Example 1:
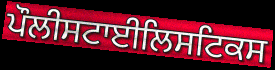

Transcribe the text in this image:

ਪੌਲੀਸਟਾਈਲਿਸਟਿਕਸ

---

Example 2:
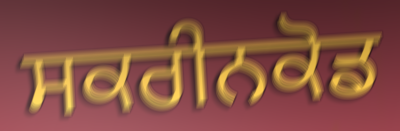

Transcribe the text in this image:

ਸਕਰੀਨਕੋਡ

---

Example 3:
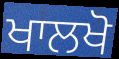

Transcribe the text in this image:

ਖਾਲਖੋ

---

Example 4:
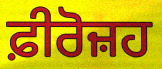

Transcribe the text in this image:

ਫ਼ੀਰੋਜ਼ਹ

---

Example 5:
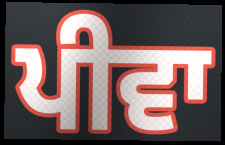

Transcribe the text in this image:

ਪੀਵਾ